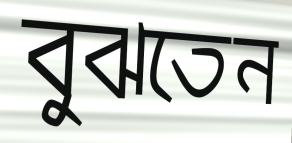
বুঝতেন